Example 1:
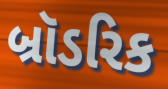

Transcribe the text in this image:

બ્રૉડરિક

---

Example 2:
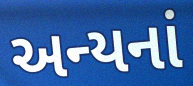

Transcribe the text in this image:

અન્યનાં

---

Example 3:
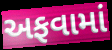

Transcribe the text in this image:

અફવામાં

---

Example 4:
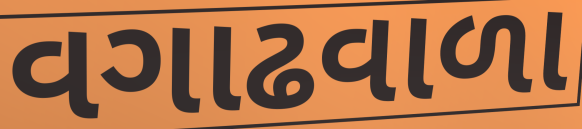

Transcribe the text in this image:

વગાઢવાળા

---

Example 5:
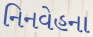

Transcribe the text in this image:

નિનવેહના